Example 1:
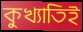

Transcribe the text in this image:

কুখ্যাতিই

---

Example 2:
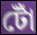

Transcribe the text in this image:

টোঁ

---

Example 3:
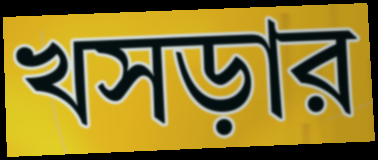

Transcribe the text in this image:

খসড়ার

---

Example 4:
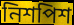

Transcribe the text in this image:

নিশপিশ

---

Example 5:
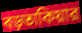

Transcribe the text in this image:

বড়তাকিয়ার